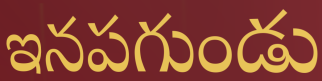
ఇనపగుండు